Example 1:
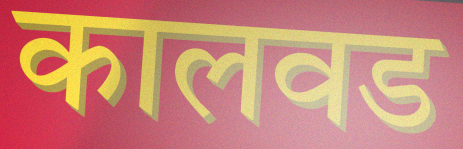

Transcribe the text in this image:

कालवड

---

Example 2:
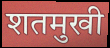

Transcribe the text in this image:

शतमुखी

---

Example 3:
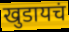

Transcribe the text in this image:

खुडायचं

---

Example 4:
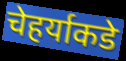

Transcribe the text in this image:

चेहर्याकडे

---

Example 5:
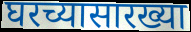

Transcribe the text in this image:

घरच्यासारख्या